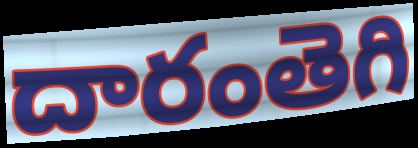
దారంతెగి